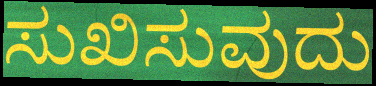
ಸುಖಿಸುವುದು